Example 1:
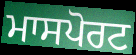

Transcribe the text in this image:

ਮਾਸਪੋਰਟ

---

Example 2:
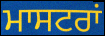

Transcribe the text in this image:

ਮਾਸਟਰਾਂ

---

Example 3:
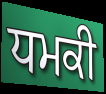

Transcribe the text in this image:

ਧਮਕੀ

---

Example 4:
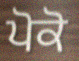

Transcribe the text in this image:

ਪੋਕੋ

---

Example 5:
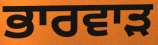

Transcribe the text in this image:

ਭਾਰਵਾੜ